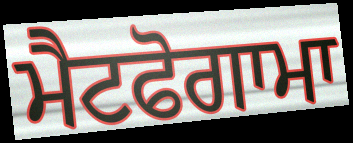
ਮੈਟਫੋਗਾਮਾ